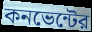
কনভেন্টের